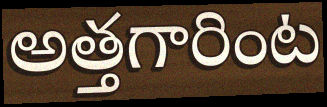
అత్తగారింట